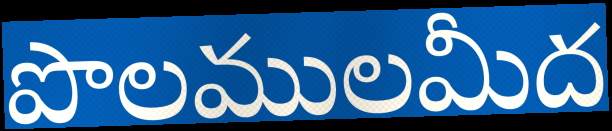
పొలములమీద